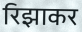
रिझाकर